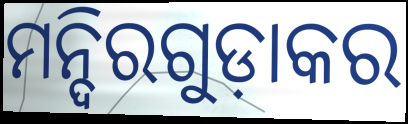
ମନ୍ଦିରଗୁଡ଼ାକର